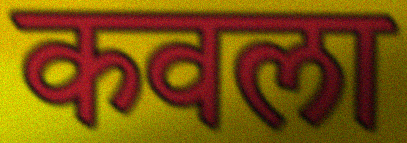
कवला